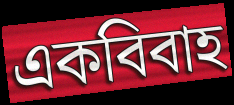
একবিবাহ